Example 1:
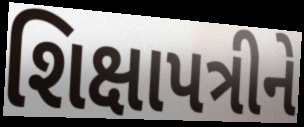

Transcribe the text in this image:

શિક્ષાપત્રીને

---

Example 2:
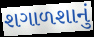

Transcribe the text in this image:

શગાળશાનું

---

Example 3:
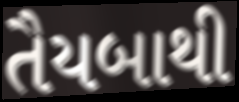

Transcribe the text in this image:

તૈયબાથી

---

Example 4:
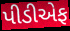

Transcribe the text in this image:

પીડીએફ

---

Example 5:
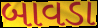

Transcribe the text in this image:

બાવડા